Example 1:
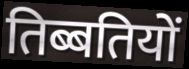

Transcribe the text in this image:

तिब्बतियों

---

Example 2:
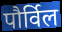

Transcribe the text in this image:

पौर्विल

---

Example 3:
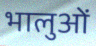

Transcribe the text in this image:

भालुओं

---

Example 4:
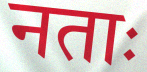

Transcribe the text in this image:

नताः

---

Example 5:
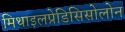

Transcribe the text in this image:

मिथाइलप्रेडिसिसोलोन